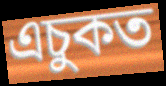
এচুকত